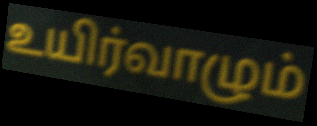
உயிர்வாழும்